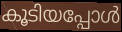
കൂടിയപ്പോൾ